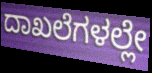
ದಾಖಲೆಗಳಲ್ಲೇ